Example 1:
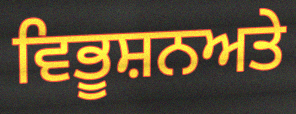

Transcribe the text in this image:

ਵਿਭੂਸ਼ਨਅਤੇ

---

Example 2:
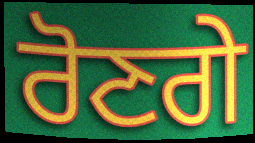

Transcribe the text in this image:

ਰੋਣਗੇ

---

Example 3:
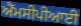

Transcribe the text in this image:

ਐੱਮਸੀਪੀਆਈ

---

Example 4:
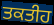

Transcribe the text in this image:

ਤਕਤੀਹ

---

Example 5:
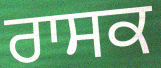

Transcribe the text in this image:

ਰਾਸਕ